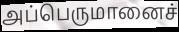
அப்பெருமானைச்